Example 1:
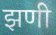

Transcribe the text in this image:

झणी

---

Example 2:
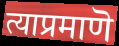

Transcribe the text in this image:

त्याप्रमाणॆ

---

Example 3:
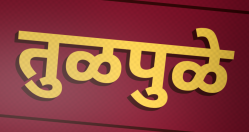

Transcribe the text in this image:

तुळपुळे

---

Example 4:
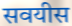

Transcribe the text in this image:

सवयीस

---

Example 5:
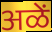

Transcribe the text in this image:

अळें